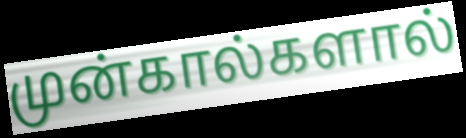
முன்கால்களால்